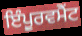
ਇੰਪੂਰਵਮੈਂਟ